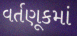
વર્તણૂકમાં